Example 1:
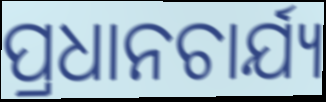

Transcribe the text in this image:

ପ୍ରଧାନଚାର୍ଯ୍ୟ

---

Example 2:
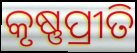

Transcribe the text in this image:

କୃଷ୍ଣପ୍ରୀତି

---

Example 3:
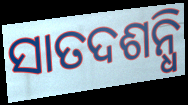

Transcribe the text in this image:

ସାତଦଶନ୍ଧି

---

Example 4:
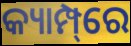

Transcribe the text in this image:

କ୍ୟାମ୍ପ୍‌ରେ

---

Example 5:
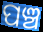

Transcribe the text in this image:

ପଞ୍ଚ